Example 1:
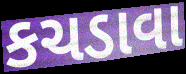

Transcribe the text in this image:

કચડાવા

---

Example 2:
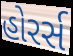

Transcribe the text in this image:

હોરર્સ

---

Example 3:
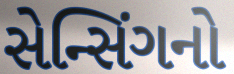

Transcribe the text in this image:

સેન્સિંગનો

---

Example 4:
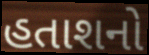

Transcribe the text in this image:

હતાશનો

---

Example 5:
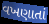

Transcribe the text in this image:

વખણાતાં